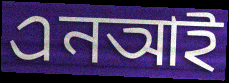
এনআই